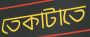
তেকাটাতে